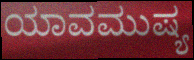
ಯಾವಮುಷ್ಯ